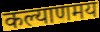
कल्याणमय